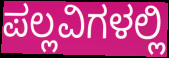
ಪಲ್ಲವಿಗಳಲ್ಲಿ